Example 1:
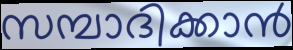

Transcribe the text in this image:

സമ്പാദിക്കാൻ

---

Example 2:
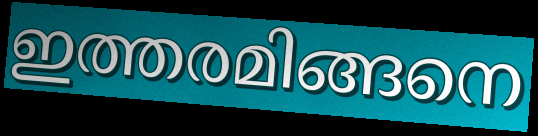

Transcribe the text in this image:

ഇത്തരമിങ്ങനെ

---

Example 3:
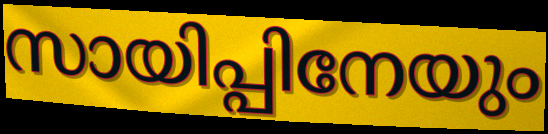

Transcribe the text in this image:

സായിപ്പിനേയും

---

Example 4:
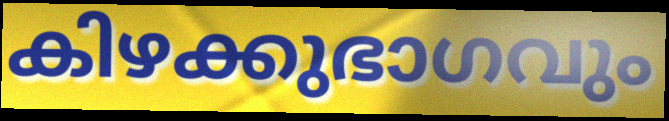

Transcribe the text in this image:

കിഴക്കുഭാഗവും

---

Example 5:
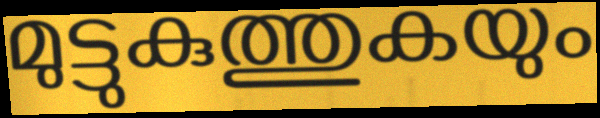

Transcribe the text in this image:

മുട്ടുകുത്തുകയും